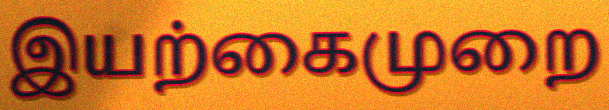
இயற்கைமுறை